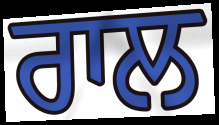
ਰਾਲ